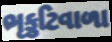
ભૃકુટિવાળા